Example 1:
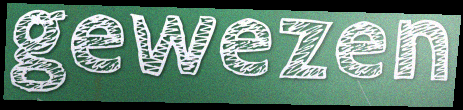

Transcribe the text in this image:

gewezen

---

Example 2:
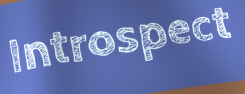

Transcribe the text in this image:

Introspect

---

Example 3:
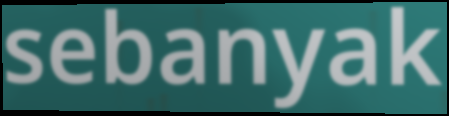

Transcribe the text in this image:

sebanyak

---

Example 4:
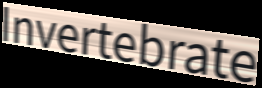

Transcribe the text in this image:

Invertebrate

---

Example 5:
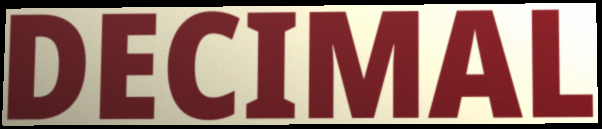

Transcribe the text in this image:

DECIMAL